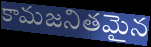
కామజనితమైన